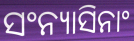
ସଂନ୍ୟାସିନାଂ